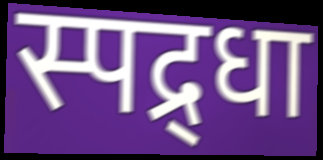
स्पद्र्धा